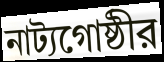
নাট্যগোষ্ঠীর